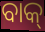
ବାକ୍